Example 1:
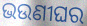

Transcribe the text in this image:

ଭଉଣୀଘର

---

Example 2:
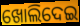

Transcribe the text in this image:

ଖୋଲିଦେଇ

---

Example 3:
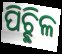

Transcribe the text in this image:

ପିଚ୍ଛିଳ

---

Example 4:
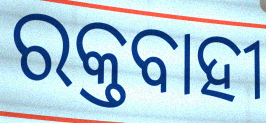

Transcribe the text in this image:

ରକ୍ତବାହୀ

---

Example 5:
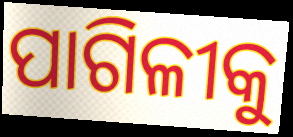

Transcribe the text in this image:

ପାଗିଳୀକୁ